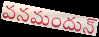
వనమందున్